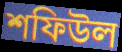
শফিউল